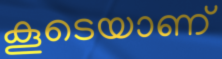
കൂടെയാണ്